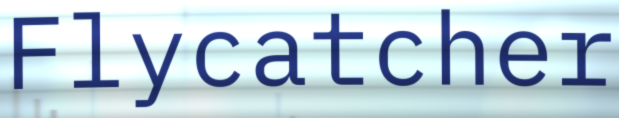
Flycatcher